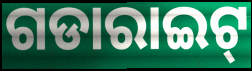
ଗଡାରାଇଟ୍